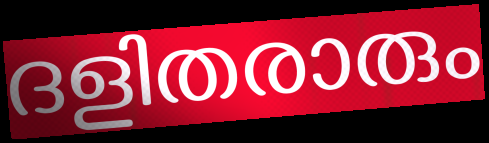
ദളിതരാരും